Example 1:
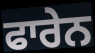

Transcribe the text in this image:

ਫਾਰੇਨ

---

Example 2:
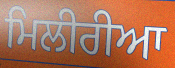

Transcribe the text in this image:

ਮਿਲੀਰੀਆ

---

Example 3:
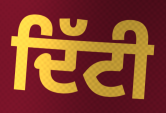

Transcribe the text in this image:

ਦਿੱਟੀ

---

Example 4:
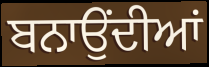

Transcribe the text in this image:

ਬਨਾਉਂਦੀਆਂ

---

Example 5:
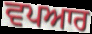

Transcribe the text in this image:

ਵਪਆਰ